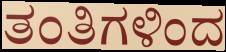
ತಂತಿಗಳಿಂದ